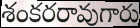
శంకరరావుగారు